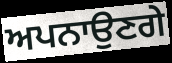
ਅਪਨਾਉਣਗੇ